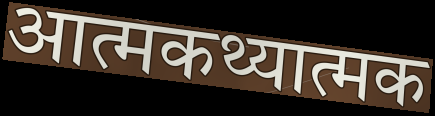
आत्मकथ्यात्मक